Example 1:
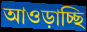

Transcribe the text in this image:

আওড়াচ্ছি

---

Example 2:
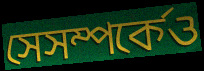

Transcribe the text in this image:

সেসম্পর্কেও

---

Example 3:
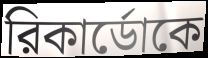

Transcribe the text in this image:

রিকার্ডোকে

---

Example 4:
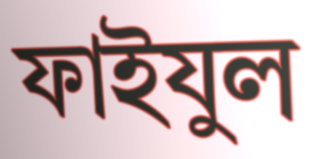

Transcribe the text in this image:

ফাইযুল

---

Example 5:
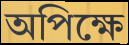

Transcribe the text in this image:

অপিক্ষে